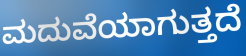
ಮದುವೆಯಾಗುತ್ತದೆ